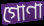
গোণা